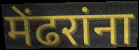
मेंढरांना